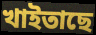
খাইতাছে